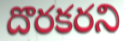
దొరకరని